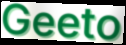
Geeto